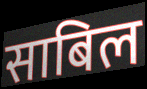
साबिल